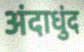
अंदाधुंद